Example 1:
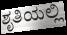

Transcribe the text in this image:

ಶೃತಿಯಲ್ಲಿ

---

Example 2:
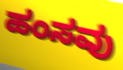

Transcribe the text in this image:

ಹಂಸವು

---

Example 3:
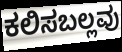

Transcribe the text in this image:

ಕಲಿಸಬಲ್ಲವು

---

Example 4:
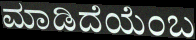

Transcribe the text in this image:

ಮಾಡಿದೆಯೆಂಬ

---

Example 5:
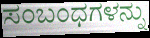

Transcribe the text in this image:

ಸಂಬಂಧಗಳನ್ನು